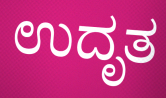
ಉದೃತ